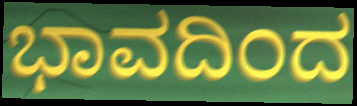
ಭಾವದಿಂದ